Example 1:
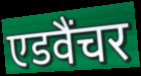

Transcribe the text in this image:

एडवैंचर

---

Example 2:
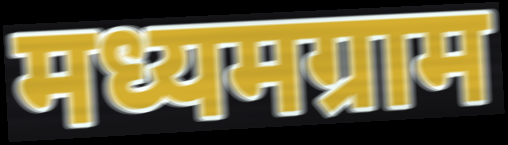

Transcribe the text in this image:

मध्यमग्राम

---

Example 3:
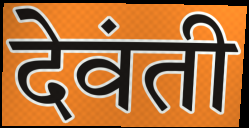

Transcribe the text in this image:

देवंती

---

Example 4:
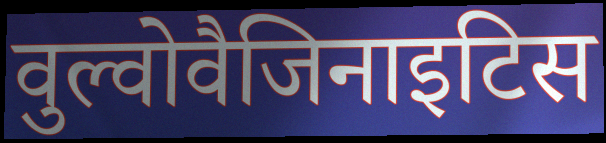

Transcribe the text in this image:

वुल्वोवैजिनाइटिस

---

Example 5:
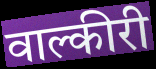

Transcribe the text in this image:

वाल्कीरी